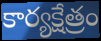
కార్యక్షేత్రం